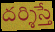
దర్శిస్తే